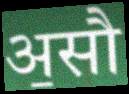
अ॒सौ